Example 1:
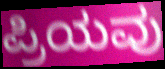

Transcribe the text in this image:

ಪ್ರಿಯವು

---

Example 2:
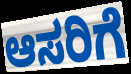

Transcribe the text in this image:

ಆಸರಿಗೆ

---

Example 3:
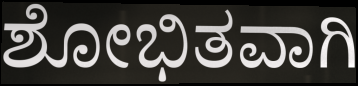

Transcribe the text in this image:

ಶೋಭಿತವಾಗಿ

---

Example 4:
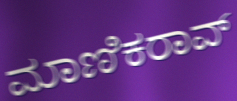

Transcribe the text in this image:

ಮಾಣಿಕರಾವ್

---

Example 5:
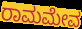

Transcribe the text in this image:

ರಾಮಮೇವ